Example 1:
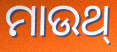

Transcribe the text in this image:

ମାଉଥ୍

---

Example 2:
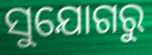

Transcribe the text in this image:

ସୁଯୋଗରୁ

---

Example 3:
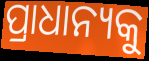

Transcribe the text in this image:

ପ୍ରାଧାନ୍ୟକୁ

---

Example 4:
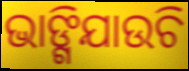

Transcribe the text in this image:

ଭାଙ୍ଗିଯାଉଚି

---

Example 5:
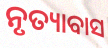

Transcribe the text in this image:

ନୃତ୍ୟାବାସ